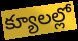
క్యూలల్లో